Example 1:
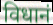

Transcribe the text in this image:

विधानं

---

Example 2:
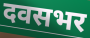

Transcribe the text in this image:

दवसभर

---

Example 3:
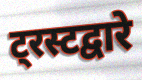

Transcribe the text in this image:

ट्रस्टद्वारे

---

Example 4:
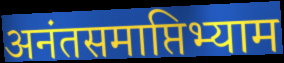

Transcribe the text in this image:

अनंतसमाप्तिभ्याम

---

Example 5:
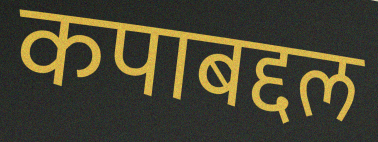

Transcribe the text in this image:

कपाबद्दल